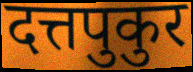
दत्तपुकुर